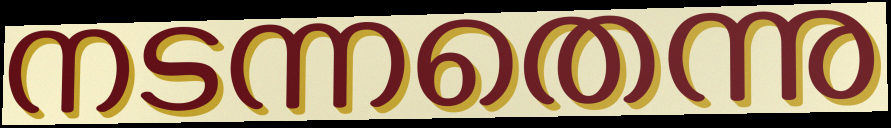
നടന്നതെന്നു